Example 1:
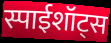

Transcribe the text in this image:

स्पाईशॉट्स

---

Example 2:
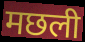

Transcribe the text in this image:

मछली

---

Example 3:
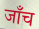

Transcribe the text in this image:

जाँच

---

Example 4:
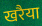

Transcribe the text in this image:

खरैया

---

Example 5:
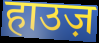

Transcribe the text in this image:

हाउज़